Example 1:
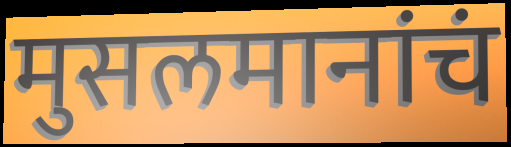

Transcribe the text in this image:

मुसलमानांचं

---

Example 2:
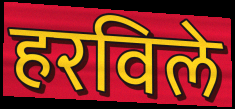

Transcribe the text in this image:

हरविले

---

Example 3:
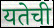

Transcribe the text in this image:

यतेची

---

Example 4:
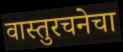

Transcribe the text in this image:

वास्तुरचनेचा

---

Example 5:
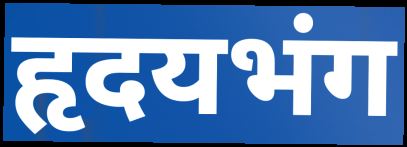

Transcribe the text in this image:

हृदयभंग